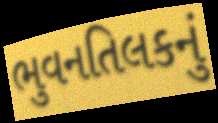
ભુવનતિલકનું